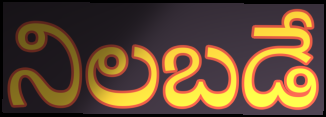
నిలబడే